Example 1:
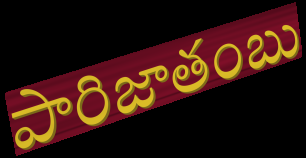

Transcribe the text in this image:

పారిజాతంబు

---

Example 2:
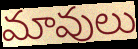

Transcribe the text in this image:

మావులు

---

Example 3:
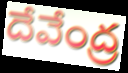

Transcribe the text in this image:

దేవేంద్ర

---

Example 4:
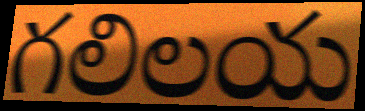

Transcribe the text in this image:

గలిలయ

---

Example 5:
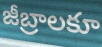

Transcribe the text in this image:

జీబ్రాలకూ